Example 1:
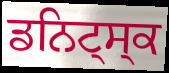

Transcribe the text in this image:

ਡਨਿਟ੍ਸ੍ਕ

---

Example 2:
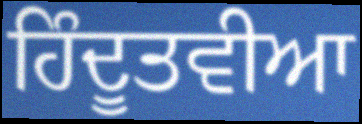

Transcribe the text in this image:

ਹਿੰਦੂਤਵੀਆ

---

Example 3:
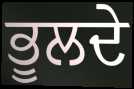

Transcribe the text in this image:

ਭੂਲਦੇ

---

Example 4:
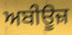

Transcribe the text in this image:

ਅਬੀਊਜ਼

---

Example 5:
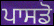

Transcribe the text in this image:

ਪਾਸਡੋ